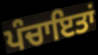
ਪੰਚਾਇਤਾਂ